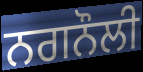
ਨਗਨੌਲੀ